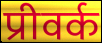
प्रीवर्क